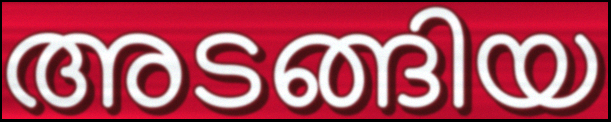
അടങ്ങിയ